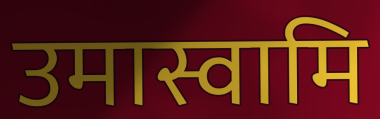
उमास्वामि